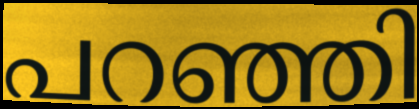
പറഞ്ഞി